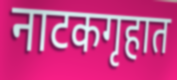
नाटकगृहात